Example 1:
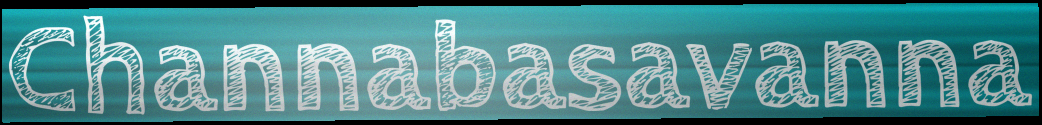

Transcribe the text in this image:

Channabasavanna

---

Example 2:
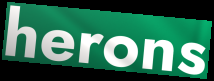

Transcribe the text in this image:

herons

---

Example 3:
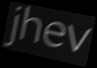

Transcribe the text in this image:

jhev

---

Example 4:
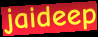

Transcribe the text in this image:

jaideep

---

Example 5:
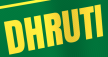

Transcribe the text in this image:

DHRUTI